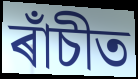
ৰাঁচীত